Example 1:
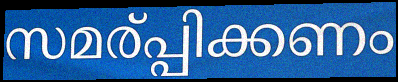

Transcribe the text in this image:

സമര്പ്പിക്കണം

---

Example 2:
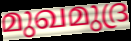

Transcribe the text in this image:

മുഖമുദ്ര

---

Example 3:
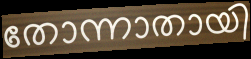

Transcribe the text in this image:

തോന്നാതായി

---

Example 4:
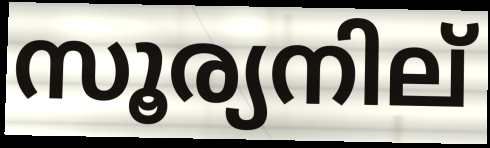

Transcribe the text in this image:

സൂര്യനില്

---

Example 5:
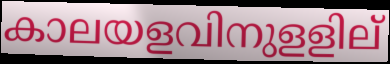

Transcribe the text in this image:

കാലയളവിനുളളില്